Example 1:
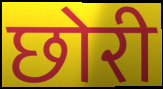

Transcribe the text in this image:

छोरी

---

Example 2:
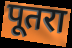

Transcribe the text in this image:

पूतरा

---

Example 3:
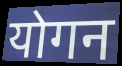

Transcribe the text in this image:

योगन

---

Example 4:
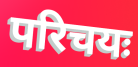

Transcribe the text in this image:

परिचयः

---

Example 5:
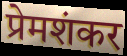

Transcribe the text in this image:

प्रेमशंकर